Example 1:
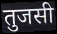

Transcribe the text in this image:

तुजसी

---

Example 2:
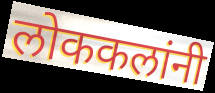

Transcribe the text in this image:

लोककलांनी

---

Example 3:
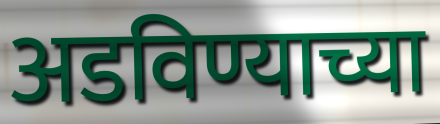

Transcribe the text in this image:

अडविण्याच्या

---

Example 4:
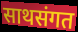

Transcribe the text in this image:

साथसंगत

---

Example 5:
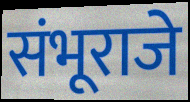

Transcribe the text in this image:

संभूराजे